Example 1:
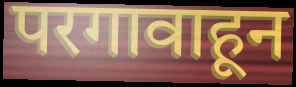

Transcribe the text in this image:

परगावाहून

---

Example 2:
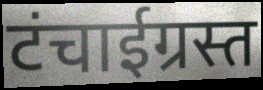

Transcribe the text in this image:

टंचाईग्रस्त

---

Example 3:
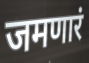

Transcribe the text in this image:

जमणारं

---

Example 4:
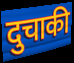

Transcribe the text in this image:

दुचाकी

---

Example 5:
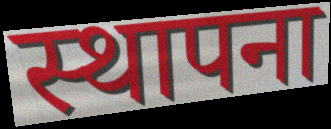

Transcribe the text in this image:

स्थापना